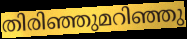
തിരിഞ്ഞുമറിഞ്ഞു